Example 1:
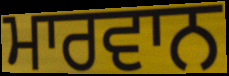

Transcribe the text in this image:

ਮਾਰਵਾਨ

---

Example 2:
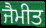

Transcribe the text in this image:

ਜੈਮੀਤ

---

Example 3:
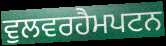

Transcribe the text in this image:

ਵੁਲਵਰਹੈਮਪਟਨ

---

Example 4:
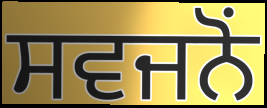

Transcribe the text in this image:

ਸਵਜਨੋਂ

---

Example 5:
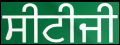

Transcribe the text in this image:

ਸੀਟੀਜੀ